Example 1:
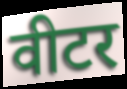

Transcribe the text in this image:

वीटर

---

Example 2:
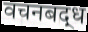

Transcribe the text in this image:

वचनबद्ध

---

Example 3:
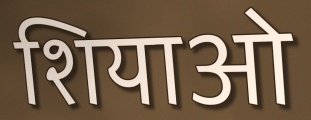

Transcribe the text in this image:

शियाओ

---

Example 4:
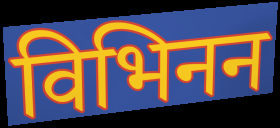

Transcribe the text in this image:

विभिनन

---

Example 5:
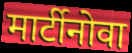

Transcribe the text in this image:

मार्टीनोवा